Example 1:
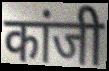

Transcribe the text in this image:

कांजी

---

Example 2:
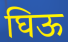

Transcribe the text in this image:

घिऊ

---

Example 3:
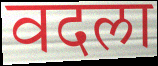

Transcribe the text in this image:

वदला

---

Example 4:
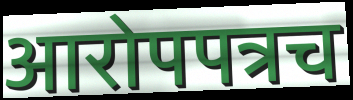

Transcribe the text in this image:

आरोपपत्रच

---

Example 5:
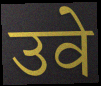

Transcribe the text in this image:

उवे